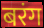
बरंग